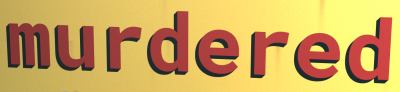
murdered